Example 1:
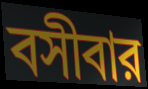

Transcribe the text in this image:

বসীবার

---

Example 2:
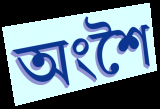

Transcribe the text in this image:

অংশৈ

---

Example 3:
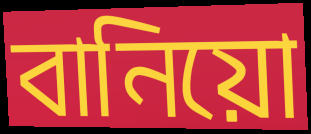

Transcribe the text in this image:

বানিয়ো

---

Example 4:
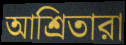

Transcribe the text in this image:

আশ্রিতারা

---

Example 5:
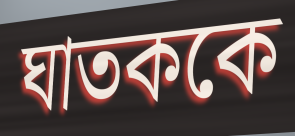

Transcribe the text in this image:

ঘাতককে